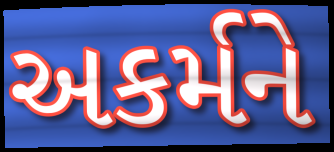
અકર્મને